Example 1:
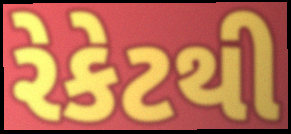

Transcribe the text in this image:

રેકેટથી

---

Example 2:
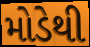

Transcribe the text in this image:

મોડેથી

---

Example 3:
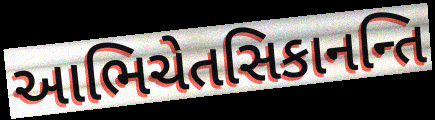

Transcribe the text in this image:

આભિચેતસિકાનન્તિ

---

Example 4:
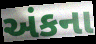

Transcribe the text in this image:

અંકના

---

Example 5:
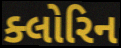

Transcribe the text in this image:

ક્લોરિન